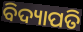
ବିଦ୍ୟାପତି